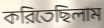
করিতেছিলাম